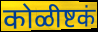
कोळीष्टकं